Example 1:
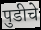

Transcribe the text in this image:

पुडीचे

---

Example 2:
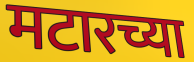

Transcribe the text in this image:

मटारच्या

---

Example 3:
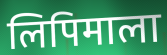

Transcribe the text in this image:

लिपिमाला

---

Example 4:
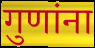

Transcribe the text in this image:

गुणांना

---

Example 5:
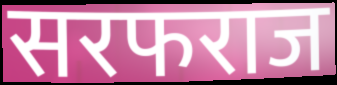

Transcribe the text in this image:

सरफराज